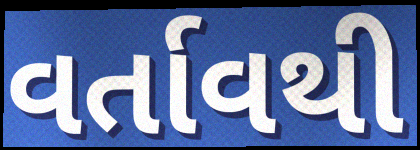
વર્તાવથી